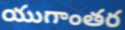
యుగాంతర